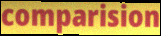
comparision